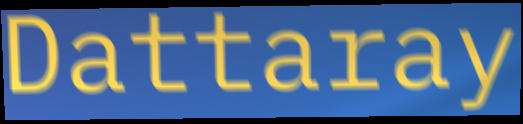
Dattaray